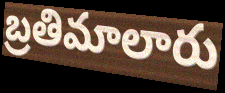
బ్రతిమాలారు